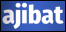
ajibat